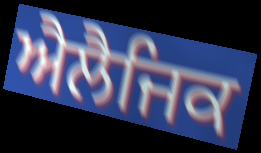
ਐਲੈਜਿਕ